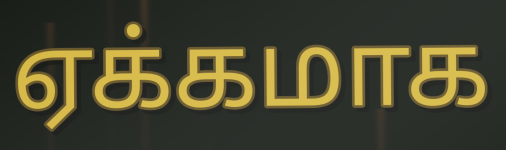
ஏக்கமாக